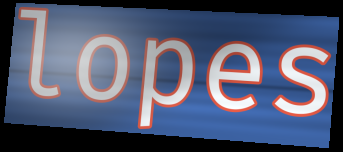
lopes